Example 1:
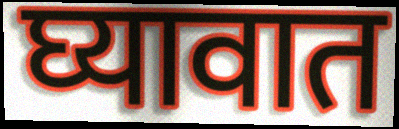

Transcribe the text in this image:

घ्यावात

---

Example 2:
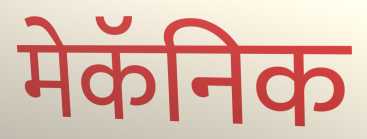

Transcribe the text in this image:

मेकॅनिक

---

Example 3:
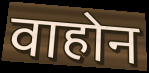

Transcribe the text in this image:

वाहोन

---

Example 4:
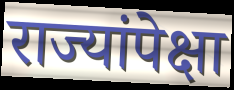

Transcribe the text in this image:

राज्यांपेक्षा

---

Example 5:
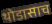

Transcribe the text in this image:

थोडासाच